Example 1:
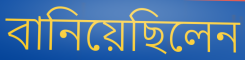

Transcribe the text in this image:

বানিয়েছিলেন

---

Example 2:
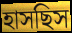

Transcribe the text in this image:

হাসছিস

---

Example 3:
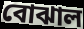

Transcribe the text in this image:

বোঝাল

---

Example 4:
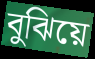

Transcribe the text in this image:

বুঝিয়ে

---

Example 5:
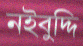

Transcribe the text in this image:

নইবুদ্দি